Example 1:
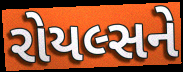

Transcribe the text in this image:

રોયલ્સને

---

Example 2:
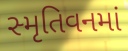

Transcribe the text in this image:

સ્મૃતિવનમાં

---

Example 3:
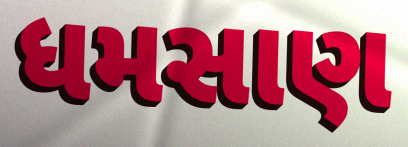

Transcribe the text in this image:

ધમસાણ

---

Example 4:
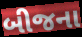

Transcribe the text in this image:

બીજના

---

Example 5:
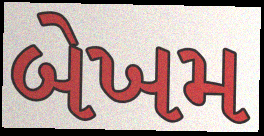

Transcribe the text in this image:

બેખમ